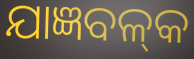
ଯାଜ୍ଞବଳ୍‍କ